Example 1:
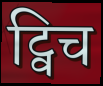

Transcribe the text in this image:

ट्विच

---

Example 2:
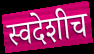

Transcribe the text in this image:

स्वदेशीच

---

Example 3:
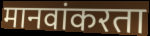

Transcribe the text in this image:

मानवांकरता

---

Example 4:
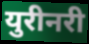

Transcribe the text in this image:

युरीनरी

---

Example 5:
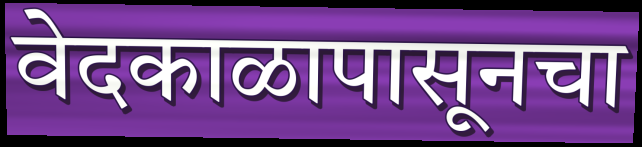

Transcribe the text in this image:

वेदकाळापासूनचा